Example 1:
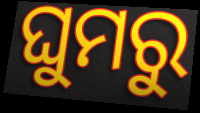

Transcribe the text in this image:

ଘୁମରୁ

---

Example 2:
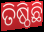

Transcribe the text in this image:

ତିଷ୍ଠିଛି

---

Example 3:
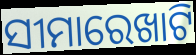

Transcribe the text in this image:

ସୀମାରେଖାଟି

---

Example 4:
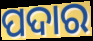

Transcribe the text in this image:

ପଦାର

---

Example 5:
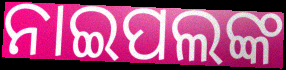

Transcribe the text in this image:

ନାଇପଲଙ୍କ